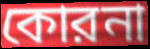
কোরনা